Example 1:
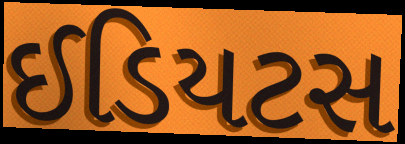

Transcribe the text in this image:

ઈડિયટસ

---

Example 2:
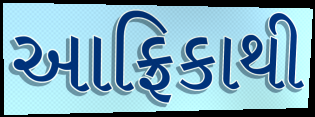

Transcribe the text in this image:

આફ્રિકાથી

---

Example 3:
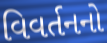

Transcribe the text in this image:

વિવર્તનનો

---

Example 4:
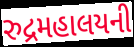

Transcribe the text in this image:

રુદ્રમહાલયની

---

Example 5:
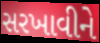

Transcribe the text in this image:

સરખાવીને